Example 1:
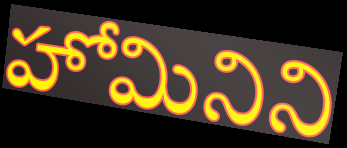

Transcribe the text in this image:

హోమినిని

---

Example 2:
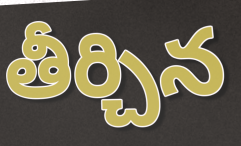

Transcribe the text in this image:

తీర్చిన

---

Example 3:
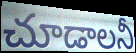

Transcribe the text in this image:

చూడాలనీ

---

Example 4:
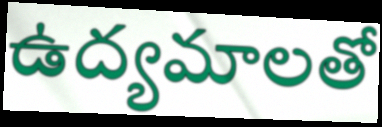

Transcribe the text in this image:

ఉద్యమాలతో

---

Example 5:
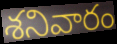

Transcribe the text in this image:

శనివారం